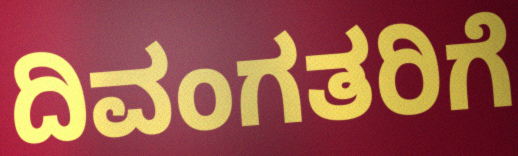
ದಿವಂಗತರಿಗೆ